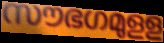
സൗഭഗമുളള